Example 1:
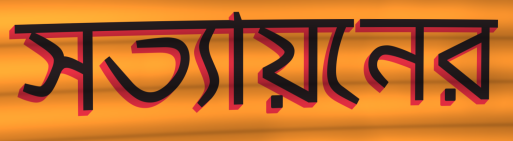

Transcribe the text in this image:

সত্যায়নের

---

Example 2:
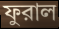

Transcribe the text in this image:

ফুরাল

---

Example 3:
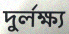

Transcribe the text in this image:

দুর্লক্ষ্য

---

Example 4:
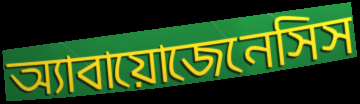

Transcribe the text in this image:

অ্যাবায়োজেনেসিস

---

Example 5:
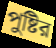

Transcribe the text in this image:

পুষ্টির